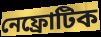
নেফ্রোটিক